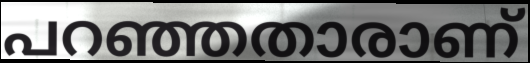
പറഞ്ഞതാരാണ്